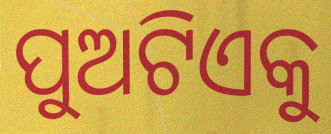
ପୁଅଟିଏକୁ